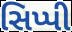
સિપ્પી